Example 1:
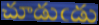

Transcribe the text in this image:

చూడుఁడు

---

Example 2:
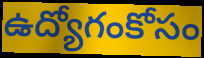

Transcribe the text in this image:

ఉద్యోగంకోసం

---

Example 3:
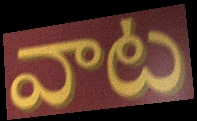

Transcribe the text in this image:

వాట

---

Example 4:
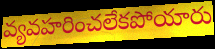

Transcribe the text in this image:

వ్యవహరించలేకపోయారు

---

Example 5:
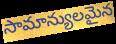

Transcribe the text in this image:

సామాన్యులమైన